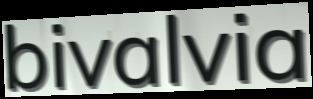
bivalvia